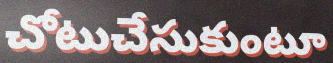
చోటుచేసుకుంటూ